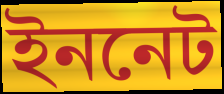
ইননেট